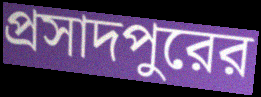
প্রসাদপুরের